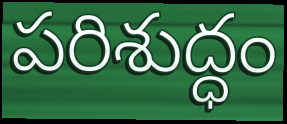
పరిశుద్ధం